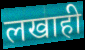
लखाही